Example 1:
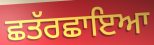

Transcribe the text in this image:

ਛਤੱਰਛਾਇਆ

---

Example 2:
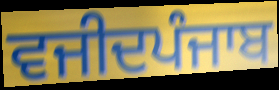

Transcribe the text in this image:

ਵਜੀਦਪੰਜਾਬ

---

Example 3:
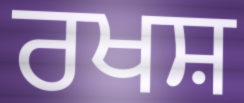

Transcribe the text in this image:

ਰਖਸ਼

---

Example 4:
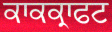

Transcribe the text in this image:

ਕਾਕਕ੍ਰਾਫਟ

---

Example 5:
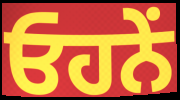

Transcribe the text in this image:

ਓਹਨੇੰ